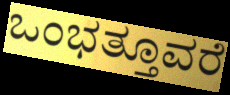
ಒಂಭತ್ತೂವರೆ